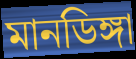
মানডিঙ্গা